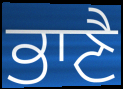
ਭਾਣੈ